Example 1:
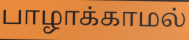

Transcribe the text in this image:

பாழாக்காமல்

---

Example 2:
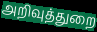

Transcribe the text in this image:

அறிவுத்துறை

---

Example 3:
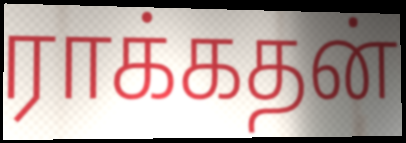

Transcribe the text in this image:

ராக்கதன்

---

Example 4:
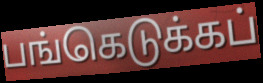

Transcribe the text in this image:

பங்கெடுக்கப்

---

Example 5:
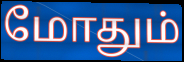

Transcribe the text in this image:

மோதும்